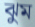
ঝুম